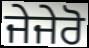
ਜੇਜੇਰੋ